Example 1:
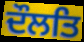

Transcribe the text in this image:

ਦੌਲਤਿ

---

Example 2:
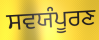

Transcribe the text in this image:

ਸਵਯੰਪੂਰਣ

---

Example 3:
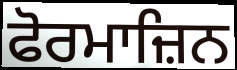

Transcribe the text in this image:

ਫੋਰਮਾਜ਼ਿਨ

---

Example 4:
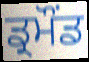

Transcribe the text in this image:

ਡ੍ਰਮੌਂਡ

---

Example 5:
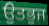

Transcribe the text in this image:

ਉਤਭੁਜ